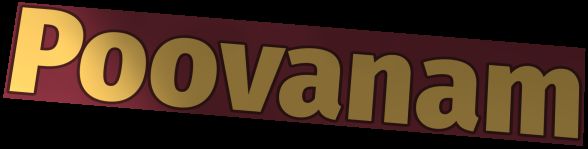
Poovanam